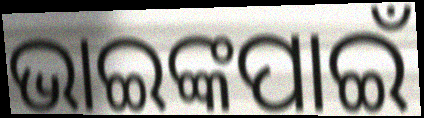
ଭାଇଙ୍କପାଇଁ